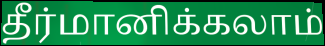
தீர்மானிக்கலாம்